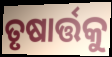
ତୃଷାର୍ତ୍ତକୁ